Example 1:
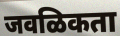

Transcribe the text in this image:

जवळिकता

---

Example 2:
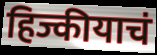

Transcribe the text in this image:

हिज्कीयाचं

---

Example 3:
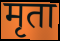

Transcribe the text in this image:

मृता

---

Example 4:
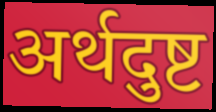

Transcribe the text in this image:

अर्थदुष्ट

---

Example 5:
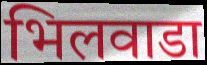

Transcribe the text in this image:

भिलवाडा